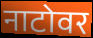
नाटोवर